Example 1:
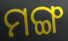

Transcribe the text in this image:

ମଙ୍ଗ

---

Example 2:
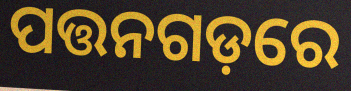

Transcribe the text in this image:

ପତ୍ତନଗଡ଼ରେ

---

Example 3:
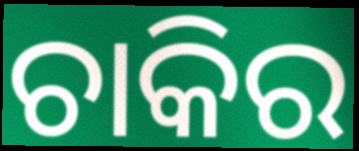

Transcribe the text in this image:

ଚାକିର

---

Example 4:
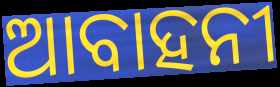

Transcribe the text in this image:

ଆବାହନୀ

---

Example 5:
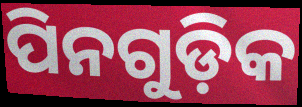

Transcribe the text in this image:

ପିନଗୁଡ଼ିକ